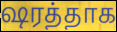
ஷரத்தாக